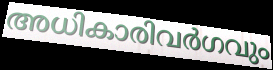
അധികാരിവർഗവും